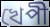
খেপী